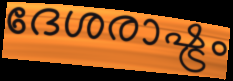
ദേശരാഷ്ട്രം